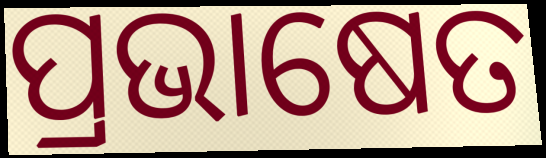
ପ୍ରଭାଷେତ